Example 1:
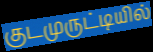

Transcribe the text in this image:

குடமுருட்டியில்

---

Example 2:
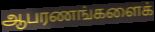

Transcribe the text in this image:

ஆபரணங்களைக்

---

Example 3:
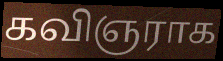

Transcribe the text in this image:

கவிஞராக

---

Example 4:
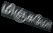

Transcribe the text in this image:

மிஞ்சுமோ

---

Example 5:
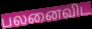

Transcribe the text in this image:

பலனைவிட